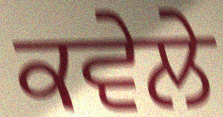
ਕਵੇਲੇ